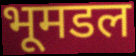
भूमडल